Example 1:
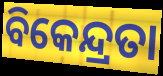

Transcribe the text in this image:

ବିକେନ୍ଦ୍ରତା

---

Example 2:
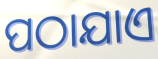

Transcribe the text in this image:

ପଠାଯାଏ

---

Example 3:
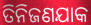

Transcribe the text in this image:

ତିନିଜଣଯାକ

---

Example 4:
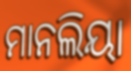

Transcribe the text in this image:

ମାନଲିୟା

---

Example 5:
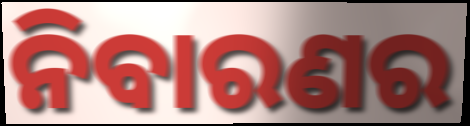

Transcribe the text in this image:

ନିବାରଣର